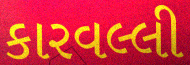
કારવલ્લી